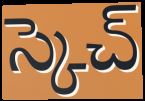
స్కెచ్